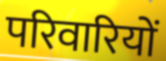
परिवारियों